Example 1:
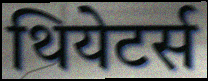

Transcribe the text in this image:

थियेटर्स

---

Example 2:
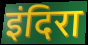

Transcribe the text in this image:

इंदिरा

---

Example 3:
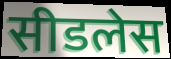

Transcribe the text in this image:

सीडलेस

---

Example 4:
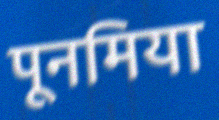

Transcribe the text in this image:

पूनमिया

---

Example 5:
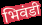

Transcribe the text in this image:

भिवंडी